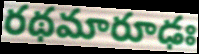
రథమారూఢః